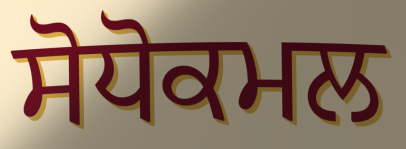
ਸੋਧੋਕਮਲ